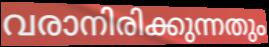
വരാനിരിക്കുന്നതും